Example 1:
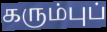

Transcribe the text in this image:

கரும்புப்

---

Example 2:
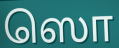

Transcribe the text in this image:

ஸொ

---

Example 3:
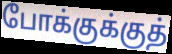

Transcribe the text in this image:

போக்குக்குத்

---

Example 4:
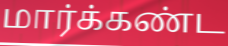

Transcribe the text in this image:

மார்க்கண்ட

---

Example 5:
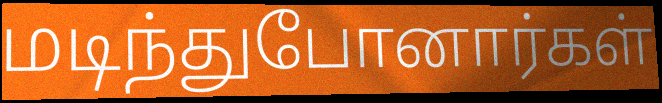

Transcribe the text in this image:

மடிந்துபோனார்கள்